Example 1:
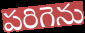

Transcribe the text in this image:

పరిగెను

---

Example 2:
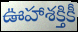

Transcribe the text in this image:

ఊహాశక్తికీ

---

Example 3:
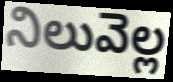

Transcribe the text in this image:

నిలువెల్ల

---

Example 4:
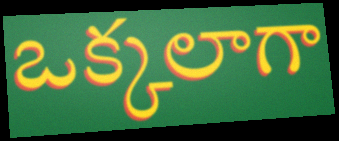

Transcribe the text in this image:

ఒక్కలాగా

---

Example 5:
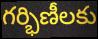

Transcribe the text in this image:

గర్భిణీలకు